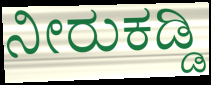
ನೀರುಕಡ್ಡಿ